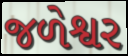
જળેશ્વર